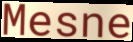
Mesne